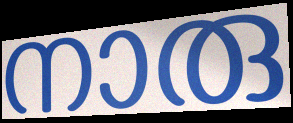
നാരു